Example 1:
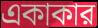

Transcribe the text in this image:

একাকার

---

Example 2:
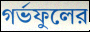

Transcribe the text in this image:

গর্ভফুলের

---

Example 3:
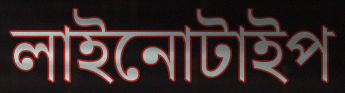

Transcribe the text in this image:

লাইনোটাইপ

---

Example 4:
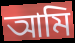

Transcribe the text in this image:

আমি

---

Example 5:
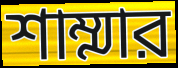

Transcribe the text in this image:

শাম্মার